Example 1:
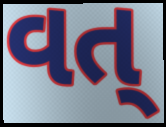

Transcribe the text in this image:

વત્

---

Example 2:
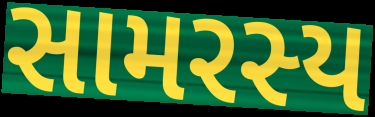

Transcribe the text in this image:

સામરસ્ય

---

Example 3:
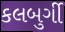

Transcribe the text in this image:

કલબુર્ગી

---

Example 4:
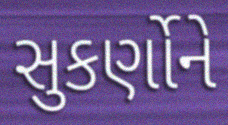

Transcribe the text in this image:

સુકર્ણોને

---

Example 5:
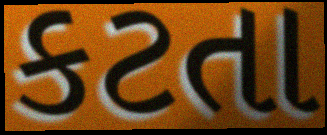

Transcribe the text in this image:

કટતા